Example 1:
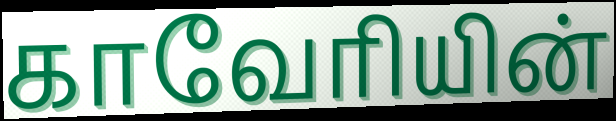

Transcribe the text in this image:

காவேரியின்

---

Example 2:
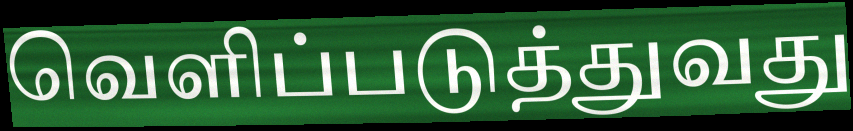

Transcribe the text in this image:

வெளிப்படுத்துவது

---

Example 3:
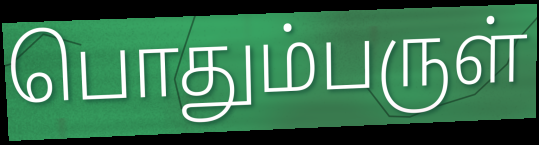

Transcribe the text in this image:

பொதும்பருள்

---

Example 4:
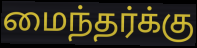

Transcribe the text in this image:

மைந்தர்க்கு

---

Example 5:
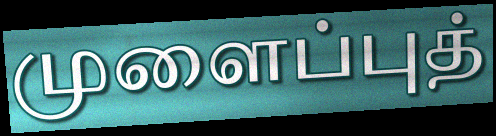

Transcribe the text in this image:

முளைப்புத்